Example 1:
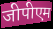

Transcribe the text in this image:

जीपीएम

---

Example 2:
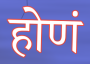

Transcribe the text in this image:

होणं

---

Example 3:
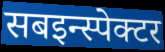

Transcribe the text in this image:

सबइन्स्पेक्टर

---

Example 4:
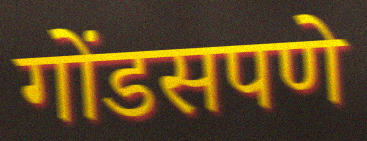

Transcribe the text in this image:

गोंडसपणे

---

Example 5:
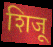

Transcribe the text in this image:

शिजू